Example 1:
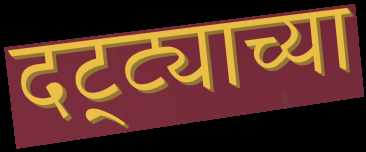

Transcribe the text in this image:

दट्ट्याच्या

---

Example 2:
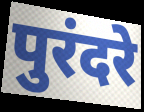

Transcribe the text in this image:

पुरंदरे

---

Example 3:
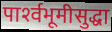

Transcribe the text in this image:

पार्श्वभूमीसुद्धा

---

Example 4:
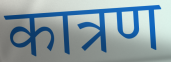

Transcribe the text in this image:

कात्रण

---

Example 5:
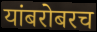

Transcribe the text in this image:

यांबरोबरच